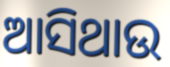
ଆସିଥାଉ